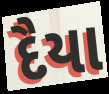
દૈયા